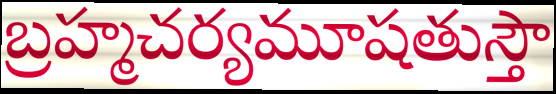
బ్రహ్మచర్యమూషతుస్తౌ